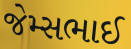
જેમ્સભાઈ